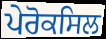
ਪੇਰੋਕਸਿਲ